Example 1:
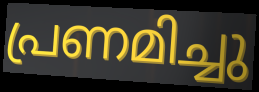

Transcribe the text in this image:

പ്രണമിച്ചു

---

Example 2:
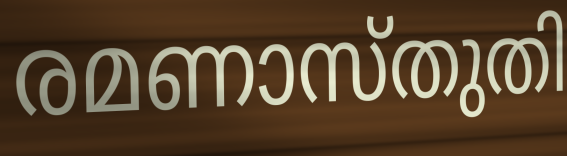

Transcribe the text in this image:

രമണാസ്തുതി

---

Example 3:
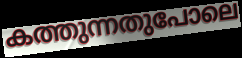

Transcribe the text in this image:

കത്തുന്നതുപോലെ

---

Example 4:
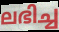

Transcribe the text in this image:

ലഭിച്ച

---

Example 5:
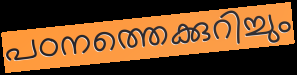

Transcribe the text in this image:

പഠനത്തെക്കുറിച്ചും